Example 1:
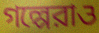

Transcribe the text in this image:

গল্পেরাও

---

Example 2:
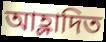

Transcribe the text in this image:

আহ্লাদিত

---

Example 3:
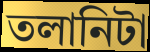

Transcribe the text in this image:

তলানিটা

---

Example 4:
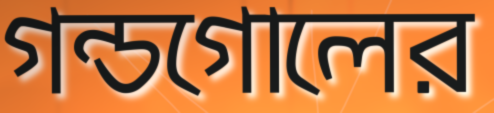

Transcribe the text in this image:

গন্ডগোলের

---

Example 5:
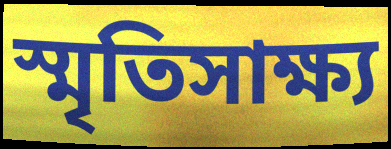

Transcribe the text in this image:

স্মৃতিসাক্ষ্য